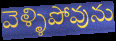
వెళ్ళిపోవును